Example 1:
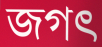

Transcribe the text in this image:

জগৎ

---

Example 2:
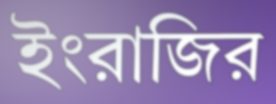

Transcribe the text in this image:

ইংরাজির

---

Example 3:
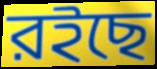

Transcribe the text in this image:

রইছে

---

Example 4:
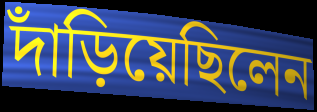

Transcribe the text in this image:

দাঁড়িয়েছিলেন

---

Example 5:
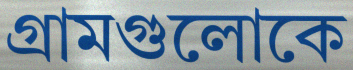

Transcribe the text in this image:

গ্রামগুলোকে